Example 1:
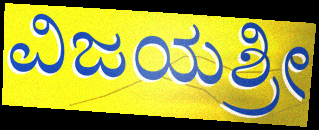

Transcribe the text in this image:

ವಿಜಯಶ್ರೀ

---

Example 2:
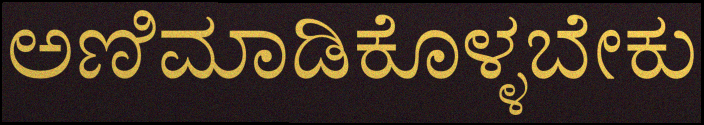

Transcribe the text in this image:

ಅಣಿಮಾಡಿಕೊಳ್ಳಬೇಕು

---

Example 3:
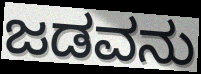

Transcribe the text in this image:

ಜಡವನು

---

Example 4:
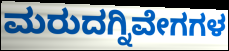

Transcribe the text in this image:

ಮರುದಗ್ನಿವೇಗಗಳ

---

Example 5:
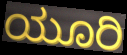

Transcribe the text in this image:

ಯೂರಿ